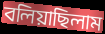
বলিয়াছিলাম